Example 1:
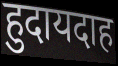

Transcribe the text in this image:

हुदायदाह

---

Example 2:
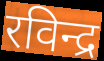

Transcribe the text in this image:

रविन्द्र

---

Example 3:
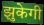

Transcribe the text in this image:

झुकेगी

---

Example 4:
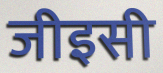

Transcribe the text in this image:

जीइसी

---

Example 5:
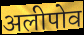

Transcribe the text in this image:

अलीपोव